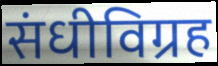
संधीविग्रह